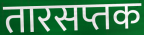
तारसप्तक